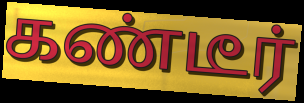
கண்டீர்